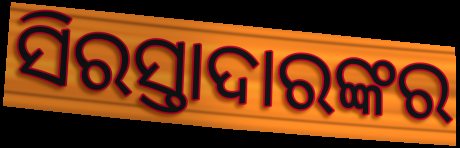
ସିରସ୍ତାଦାରଙ୍କର